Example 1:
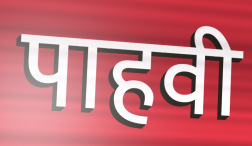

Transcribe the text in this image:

पाहवी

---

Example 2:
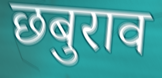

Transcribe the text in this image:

छबुराव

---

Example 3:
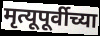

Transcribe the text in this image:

मृत्यूपूर्वीच्या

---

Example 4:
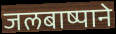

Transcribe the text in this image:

जलबाष्पाने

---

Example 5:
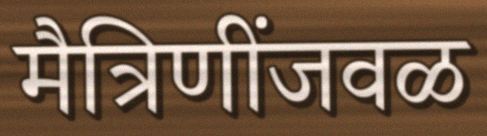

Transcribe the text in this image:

मैत्रिणींजवळ